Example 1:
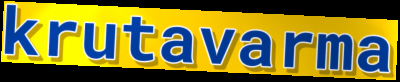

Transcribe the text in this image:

krutavarma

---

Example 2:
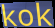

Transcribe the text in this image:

kok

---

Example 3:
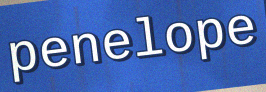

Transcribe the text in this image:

penelope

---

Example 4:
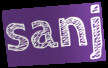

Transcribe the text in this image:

sanj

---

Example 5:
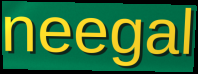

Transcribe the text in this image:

neegal